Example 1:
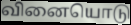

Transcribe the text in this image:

வினையொடு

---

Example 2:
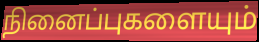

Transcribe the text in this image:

நினைப்புகளையும்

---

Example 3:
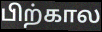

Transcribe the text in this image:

பிற்கால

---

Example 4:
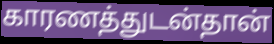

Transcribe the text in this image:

காரணத்துடன்தான்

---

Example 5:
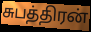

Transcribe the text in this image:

சுபத்திரன்